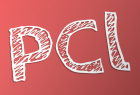
PCl